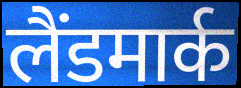
लैंडमार्क